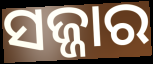
ସଜ୍ଜାର